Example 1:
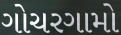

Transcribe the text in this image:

ગોચરગામો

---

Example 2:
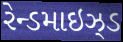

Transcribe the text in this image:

રેન્ડમાઇઝ્ડ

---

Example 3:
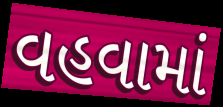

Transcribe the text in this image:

વહવામાં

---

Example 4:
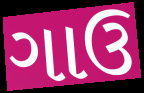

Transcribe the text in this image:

ગાઉ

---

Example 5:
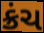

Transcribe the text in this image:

ક્રંચ